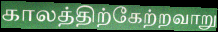
காலத்திற்கேற்றவாறு